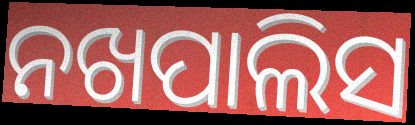
ନଖପାଲିସ